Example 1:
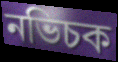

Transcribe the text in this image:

নভিচক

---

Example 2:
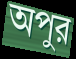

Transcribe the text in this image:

অপুর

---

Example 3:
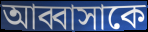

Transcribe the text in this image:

আব্বাসাকে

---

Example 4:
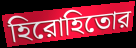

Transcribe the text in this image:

হিরোহিতোর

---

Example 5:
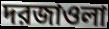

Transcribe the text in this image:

দরজাওলা